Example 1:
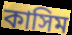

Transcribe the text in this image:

কাসিম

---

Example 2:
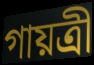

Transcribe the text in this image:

গায়ত্রী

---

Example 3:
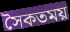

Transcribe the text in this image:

সৈকতময়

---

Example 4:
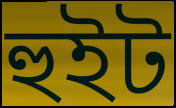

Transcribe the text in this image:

হুইট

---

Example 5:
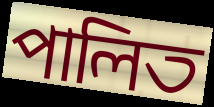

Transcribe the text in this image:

পালিত